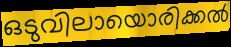
ഒടുവിലായൊരിക്കൽ